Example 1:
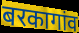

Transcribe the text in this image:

बरकागांव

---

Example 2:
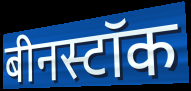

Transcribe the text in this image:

बीनस्टॉक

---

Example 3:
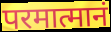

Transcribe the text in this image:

परमात्मानं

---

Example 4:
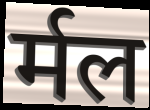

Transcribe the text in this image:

र्मल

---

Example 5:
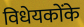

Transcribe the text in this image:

विधेयकोंके